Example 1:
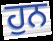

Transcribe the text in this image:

ਹੁਨ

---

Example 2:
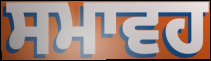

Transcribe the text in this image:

ਸਮਾਵਹ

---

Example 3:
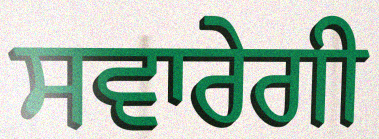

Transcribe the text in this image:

ਸਵਾਰੇਗੀ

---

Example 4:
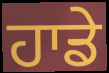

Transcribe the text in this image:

ਹਾਡੇ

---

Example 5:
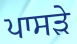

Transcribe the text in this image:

ਪਾਸੜੇ